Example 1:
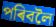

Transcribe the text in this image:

পৰিবলৈ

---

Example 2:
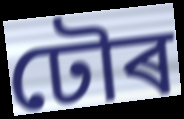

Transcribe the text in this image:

ঢৌৰ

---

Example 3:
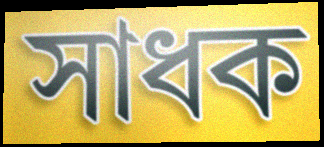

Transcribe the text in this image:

সাধক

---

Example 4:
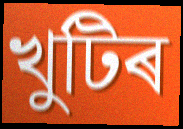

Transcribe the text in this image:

খুটিৰ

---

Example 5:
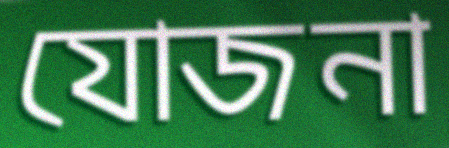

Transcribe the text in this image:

যোজনা